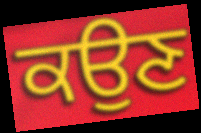
ਕਉਣ